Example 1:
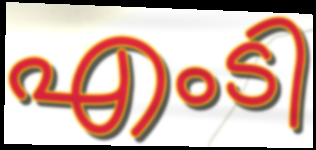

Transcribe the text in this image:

എംടി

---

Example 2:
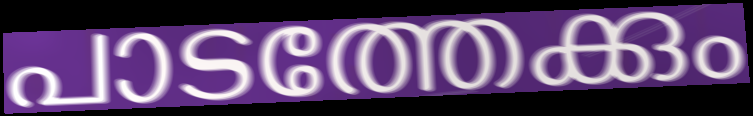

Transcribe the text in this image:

പാടത്തേക്കും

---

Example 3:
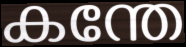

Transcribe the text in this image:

കന്തേ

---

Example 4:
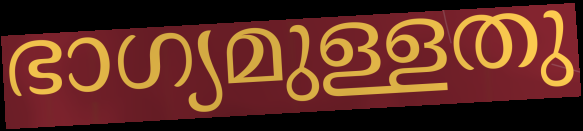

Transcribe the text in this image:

ഭാഗ്യമുള്ളതു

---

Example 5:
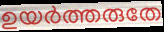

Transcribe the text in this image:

ഉയർത്തരുതേ